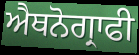
ਐਥਨੋਗ੍ਰਾਫੀ